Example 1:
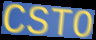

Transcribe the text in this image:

CSTO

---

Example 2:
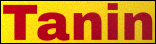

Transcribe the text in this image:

Tanin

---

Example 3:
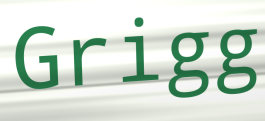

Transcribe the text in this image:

Grigg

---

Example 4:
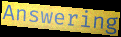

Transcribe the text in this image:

Answering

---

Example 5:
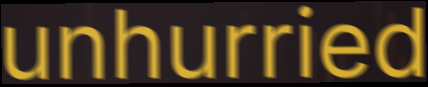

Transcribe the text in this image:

unhurried